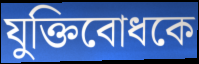
যুক্তিবোধকে